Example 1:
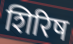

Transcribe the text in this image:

शिरिष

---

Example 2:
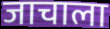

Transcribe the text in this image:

जाचाला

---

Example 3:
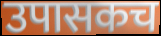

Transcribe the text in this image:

उपासकच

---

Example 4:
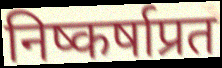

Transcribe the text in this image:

निष्कर्षाप्रत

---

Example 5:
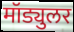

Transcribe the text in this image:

मॉड्युलर